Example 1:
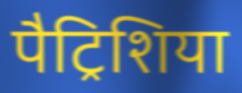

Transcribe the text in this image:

पैट्रिशिया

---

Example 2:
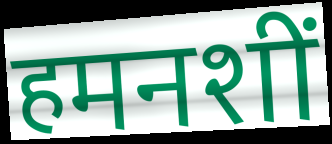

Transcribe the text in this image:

हमनशीं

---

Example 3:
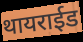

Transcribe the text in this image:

थायराईड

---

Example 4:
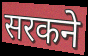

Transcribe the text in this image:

सरकने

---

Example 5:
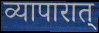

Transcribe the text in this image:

व्यापारात्